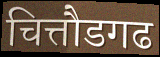
चित्तौडगढ